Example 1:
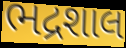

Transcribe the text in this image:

ભદ્રશાલ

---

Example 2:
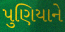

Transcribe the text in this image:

પુણિયાને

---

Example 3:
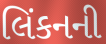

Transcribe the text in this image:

લિંકનની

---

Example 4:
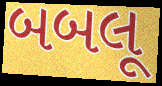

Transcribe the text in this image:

બબલૂ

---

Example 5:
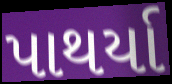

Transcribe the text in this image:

પાથર્યા